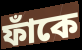
ফাঁকে